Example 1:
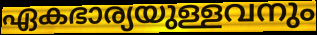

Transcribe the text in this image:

ഏകഭാര്യയുള്ളവനും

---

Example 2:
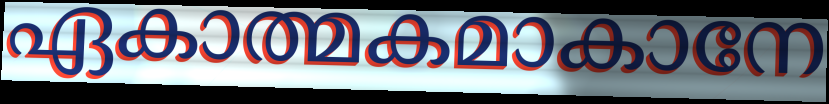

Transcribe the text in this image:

ഏകാത്മകമാകാനേ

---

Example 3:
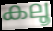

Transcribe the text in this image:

കലൂ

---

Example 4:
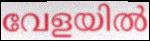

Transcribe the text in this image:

വേളയിൽ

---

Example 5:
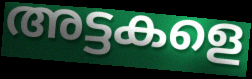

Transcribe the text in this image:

അട്ടകളെ